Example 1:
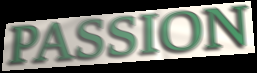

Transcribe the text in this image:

PASSION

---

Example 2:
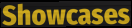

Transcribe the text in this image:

Showcases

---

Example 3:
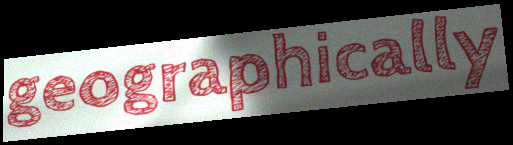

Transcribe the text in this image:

geographically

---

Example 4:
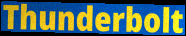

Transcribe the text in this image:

Thunderbolt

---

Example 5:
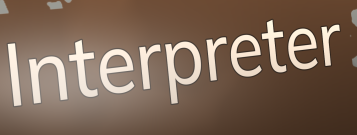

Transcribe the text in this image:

Interpreter